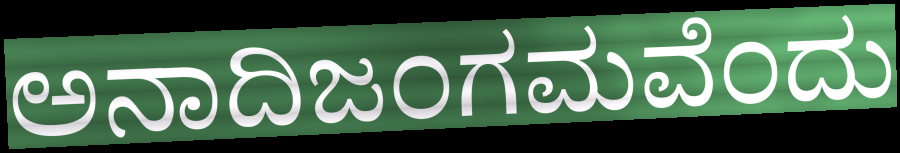
ಅನಾದಿಜಂಗಮವೆಂದು